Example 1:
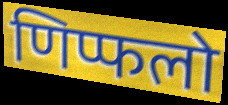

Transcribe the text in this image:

णिप्फलो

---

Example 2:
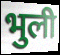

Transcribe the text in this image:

भुली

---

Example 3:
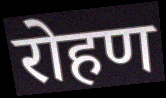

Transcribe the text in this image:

रोहण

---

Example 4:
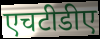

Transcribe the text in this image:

एचटीडीए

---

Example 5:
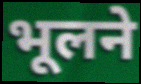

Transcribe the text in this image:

भूलने